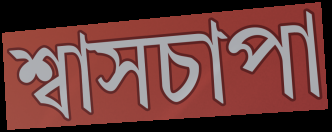
শ্বাসচাপা